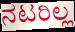
ನಟರಿಲ್ಲ